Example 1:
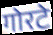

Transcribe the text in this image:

गोरटे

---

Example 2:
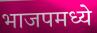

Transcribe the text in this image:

भाजपमध्ये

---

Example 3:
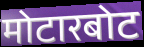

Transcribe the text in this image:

मोटारबोट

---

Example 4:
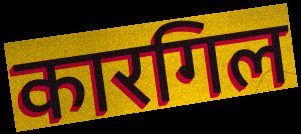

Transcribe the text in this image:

कारगिल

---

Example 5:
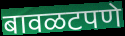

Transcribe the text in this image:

बावळटपणे